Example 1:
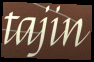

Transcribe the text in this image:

tajin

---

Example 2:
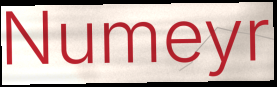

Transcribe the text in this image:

Numeyr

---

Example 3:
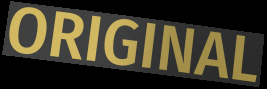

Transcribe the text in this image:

ORIGINAL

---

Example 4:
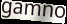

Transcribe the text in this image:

gamno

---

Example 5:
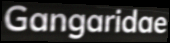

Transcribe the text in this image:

Gangaridae